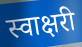
स्वाक्षरी